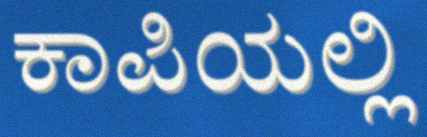
ಕಾಪಿಯಲ್ಲಿ